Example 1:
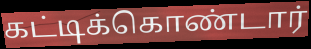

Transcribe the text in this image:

கட்டிக்கொண்டார்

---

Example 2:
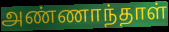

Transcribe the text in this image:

அண்ணாந்தாள்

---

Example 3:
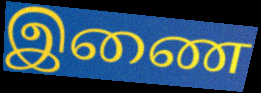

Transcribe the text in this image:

இணை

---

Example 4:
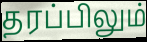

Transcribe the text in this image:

தரப்பிலும்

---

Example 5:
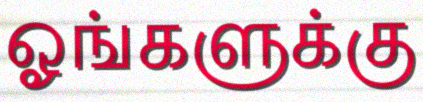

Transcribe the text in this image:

ஓங்களுக்கு